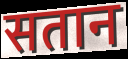
सतान